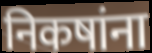
निकषांना